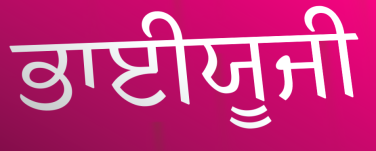
ਭਾਈਯੂਜੀ